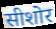
सीशोर